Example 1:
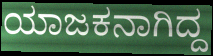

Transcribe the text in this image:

ಯಾಜಕನಾಗಿದ್ದ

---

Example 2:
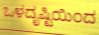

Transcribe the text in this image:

ಒಳದೃಷ್ಟಿಯಿಂದ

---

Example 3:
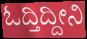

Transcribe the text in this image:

ಓದ್ತಿದ್ದೀನಿ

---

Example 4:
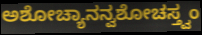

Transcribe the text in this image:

ಅಶೋಚ್ಯಾನನ್ವಶೋಚಸ್ತ್ವಂ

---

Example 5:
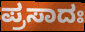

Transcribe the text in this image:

ಪ್ರಸಾದಃ